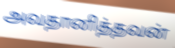
அவதானித்தவன்